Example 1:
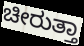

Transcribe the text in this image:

ಚೀರುತ್ತಾ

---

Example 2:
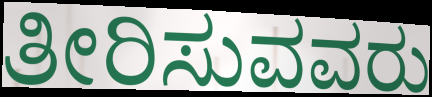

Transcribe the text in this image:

ತೀರಿಸುವವರು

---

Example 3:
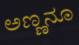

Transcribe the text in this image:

ಅಣ್ಣನೂ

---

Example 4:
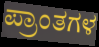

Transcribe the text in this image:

ಪ್ರಾಂತಗಳ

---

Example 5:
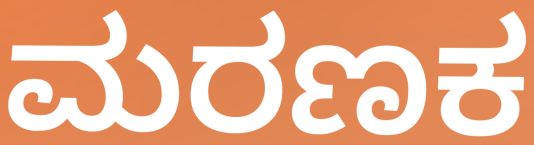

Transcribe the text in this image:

ಮರಣಕ